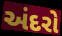
અંદરો